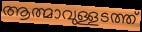
ആത്മാവുള്ളടത്ത്